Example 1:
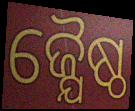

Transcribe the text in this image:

ଜ୍ଯୈଷ୍ଠ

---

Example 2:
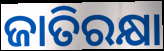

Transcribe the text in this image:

ଜାତିରକ୍ଷା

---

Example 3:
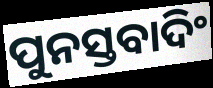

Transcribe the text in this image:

ପୁନସ୍ତବାଦିଂ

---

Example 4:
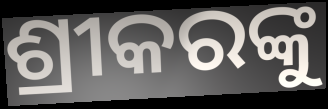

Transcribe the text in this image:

ଶ୍ରୀକରଙ୍କୁ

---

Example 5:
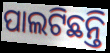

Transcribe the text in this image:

ପାଲଟିଛନ୍ତି